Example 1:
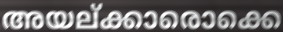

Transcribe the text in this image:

അയല്ക്കാരൊക്കെ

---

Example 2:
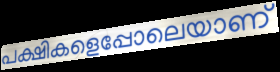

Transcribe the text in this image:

പക്ഷികളെപ്പോലെയാണ്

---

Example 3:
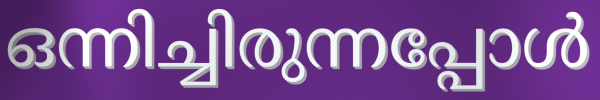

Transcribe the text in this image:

ഒന്നിച്ചിരുന്നപ്പോൾ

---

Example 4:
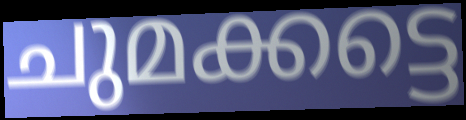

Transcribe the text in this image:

ചുമക്കട്ടെ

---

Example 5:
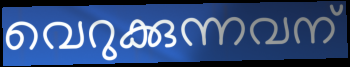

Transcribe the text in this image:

വെറുക്കുന്നവന്